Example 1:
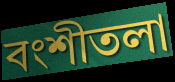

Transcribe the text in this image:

বংশীতলা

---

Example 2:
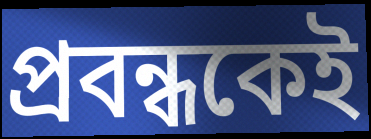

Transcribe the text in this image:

প্রবন্ধকেই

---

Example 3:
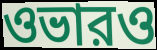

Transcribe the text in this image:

ওভারও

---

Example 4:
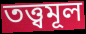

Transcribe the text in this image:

তত্ত্বমূল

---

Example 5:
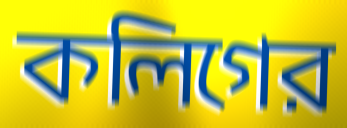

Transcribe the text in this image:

কলিগের